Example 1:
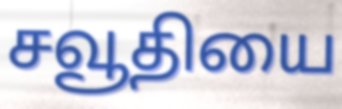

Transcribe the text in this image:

சவூதியை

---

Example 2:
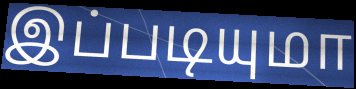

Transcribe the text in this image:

இப்படியுமா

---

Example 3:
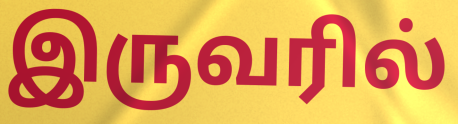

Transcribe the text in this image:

இருவரில்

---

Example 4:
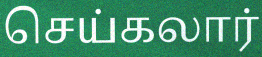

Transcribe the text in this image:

செய்கலார்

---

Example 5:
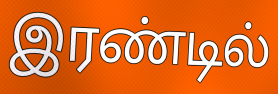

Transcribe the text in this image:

இரண்டில்